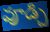
వూడ్చి